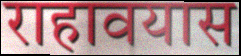
राहावयास